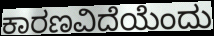
ಕಾರಣವಿದೆಯೆಂದು